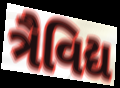
ત્રૈવિદ્ય